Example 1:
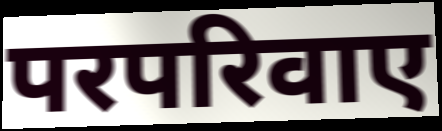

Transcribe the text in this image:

परपरिवाए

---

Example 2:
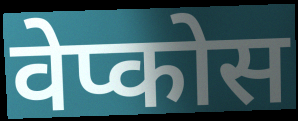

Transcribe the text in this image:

वेप्कोस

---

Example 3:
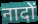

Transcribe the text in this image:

नादों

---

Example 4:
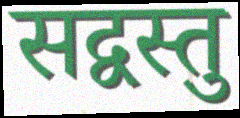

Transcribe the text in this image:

सद्वस्तु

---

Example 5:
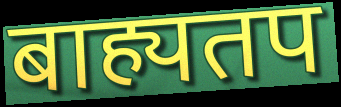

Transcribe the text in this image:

बाह्यतप